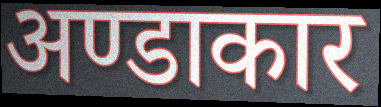
अण्डाकार